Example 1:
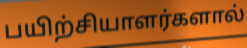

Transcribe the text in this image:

பயிற்சியாளர்களால்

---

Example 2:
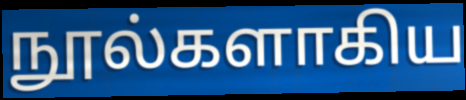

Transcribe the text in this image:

நூல்களாகிய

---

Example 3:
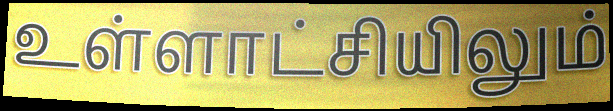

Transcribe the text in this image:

உள்ளாட்சியிலும்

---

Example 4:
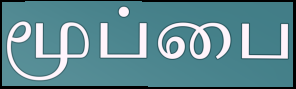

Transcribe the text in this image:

மூப்பை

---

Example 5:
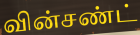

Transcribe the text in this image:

வின்சண்ட்